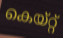
കെയ്റ്റ്